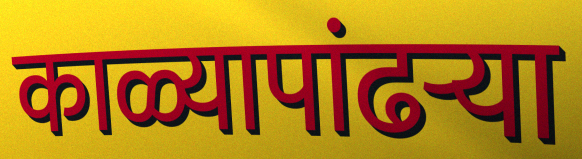
काळ्यापांढर्‍या